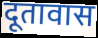
दूतावास